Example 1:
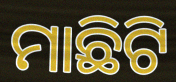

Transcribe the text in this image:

ମାଛିଟି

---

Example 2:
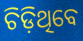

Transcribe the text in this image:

ଚିଡ଼ିଥିବେ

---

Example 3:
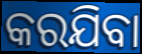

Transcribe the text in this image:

କରଯିବା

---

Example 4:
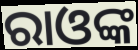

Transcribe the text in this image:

ରାଓଙ୍କ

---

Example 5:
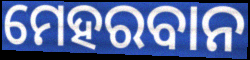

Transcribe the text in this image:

ମେହରବାନ